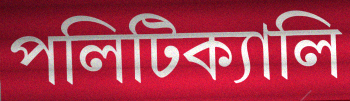
পলিটিক্যালি